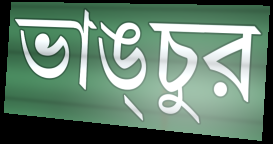
ভাঙ্চুর